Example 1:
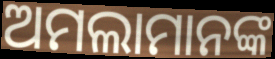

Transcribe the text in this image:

ଅମଲାମାନଙ୍କ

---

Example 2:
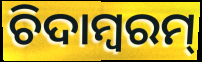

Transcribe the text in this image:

ଚିଦାମ୍ବରମ୍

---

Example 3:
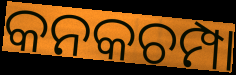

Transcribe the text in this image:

କନକଚମ୍ପା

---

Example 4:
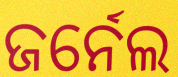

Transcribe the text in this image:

ଜର୍ନେଲ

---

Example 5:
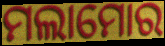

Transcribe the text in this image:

ମଲାମୋର